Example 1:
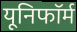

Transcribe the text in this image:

यूनिफॉर्म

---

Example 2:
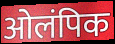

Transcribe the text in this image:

ओलंपिक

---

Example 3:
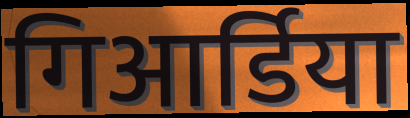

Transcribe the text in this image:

गिआर्डिया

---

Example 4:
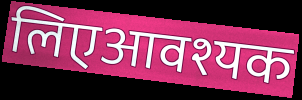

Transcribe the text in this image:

लिएआवश्यक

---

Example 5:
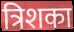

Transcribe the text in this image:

त्रिशका